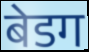
बेडग